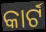
କାର୍ଟ